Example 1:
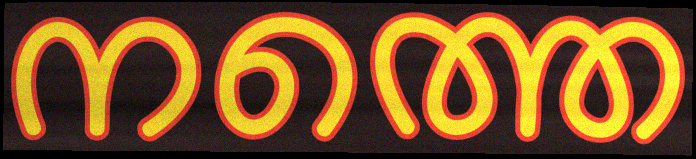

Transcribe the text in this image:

നത്തെ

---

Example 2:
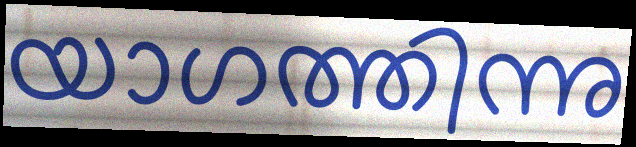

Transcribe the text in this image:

യാഗത്തിന്നു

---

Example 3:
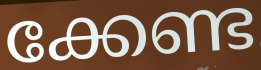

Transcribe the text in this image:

ക്കേണ്ട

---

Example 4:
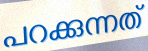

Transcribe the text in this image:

പറക്കുന്നത്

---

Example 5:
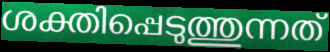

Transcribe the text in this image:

ശക്തിപ്പെടുത്തുന്നത്